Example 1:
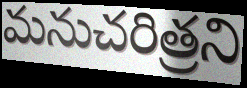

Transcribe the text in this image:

మనుచరిత్రని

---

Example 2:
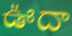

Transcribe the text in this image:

ఊదా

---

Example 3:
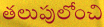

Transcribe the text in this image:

తలుపులోంచి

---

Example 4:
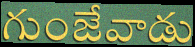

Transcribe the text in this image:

గుంజేవాడు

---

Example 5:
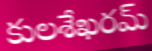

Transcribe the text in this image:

కులశేఖరమ్